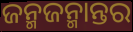
ଜନ୍ମଜନ୍ମାନ୍ତର